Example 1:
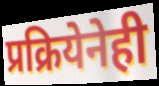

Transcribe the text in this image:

प्रक्रियेनेही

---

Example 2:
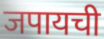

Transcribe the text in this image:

जपायची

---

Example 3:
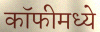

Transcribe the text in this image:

कॉफीमध्ये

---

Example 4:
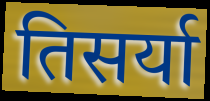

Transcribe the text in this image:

तिसर्या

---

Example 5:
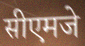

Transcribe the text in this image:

सीएमजे